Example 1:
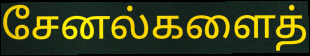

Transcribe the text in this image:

சேனல்களைத்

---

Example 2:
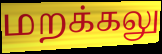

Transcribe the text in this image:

மறக்கலு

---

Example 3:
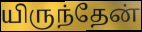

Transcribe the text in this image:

யிருந்தேன்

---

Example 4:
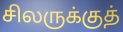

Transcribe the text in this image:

சிலருக்குத்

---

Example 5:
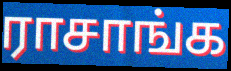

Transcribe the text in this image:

ராசாங்க